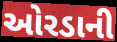
ઓરડાની